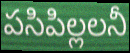
పసిపిల్లలనీ